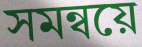
সমন্বয়ে